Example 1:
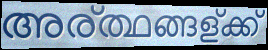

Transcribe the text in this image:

അര്ത്ഥങ്ങള്ക്ക്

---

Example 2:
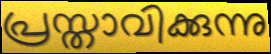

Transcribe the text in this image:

പ്രസ്താവിക്കുന്നു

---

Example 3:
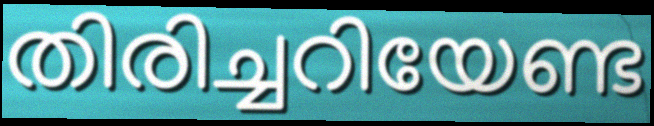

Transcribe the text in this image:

തിരിച്ചറിയേണ്ട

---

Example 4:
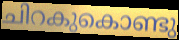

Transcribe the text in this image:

ചിറകുകൊണ്ടു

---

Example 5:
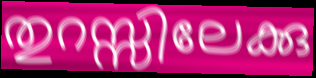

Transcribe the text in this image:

തുറസ്സിലേക്കു